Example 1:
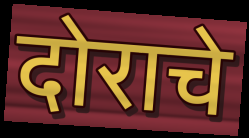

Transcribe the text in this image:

दोराचे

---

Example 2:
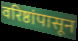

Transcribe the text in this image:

वरिष्ठांपासून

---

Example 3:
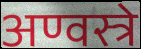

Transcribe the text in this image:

अण्वस्त्रे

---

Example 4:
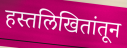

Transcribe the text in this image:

हस्तलिखितांतून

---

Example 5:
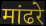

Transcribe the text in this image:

मांढरे